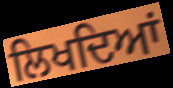
ਲਿਖਦਿਆਂ